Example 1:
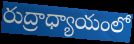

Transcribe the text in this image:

రుద్రాధ్యాయంలో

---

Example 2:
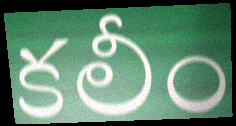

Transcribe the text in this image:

కలీం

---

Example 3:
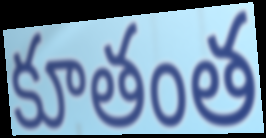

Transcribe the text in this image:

కూతంత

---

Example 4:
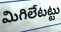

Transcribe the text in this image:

మిగిలేటట్టు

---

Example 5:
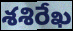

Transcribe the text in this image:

శశిరేఖ